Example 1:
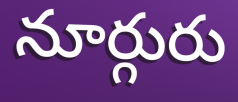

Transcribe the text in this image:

నూర్గురు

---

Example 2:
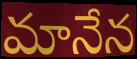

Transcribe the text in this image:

మానేన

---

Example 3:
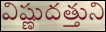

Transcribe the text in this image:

విష్ణుదత్తుని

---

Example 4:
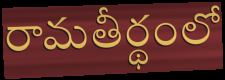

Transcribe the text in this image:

రామతీర్థంలో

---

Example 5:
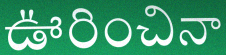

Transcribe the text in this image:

ఊరించినా